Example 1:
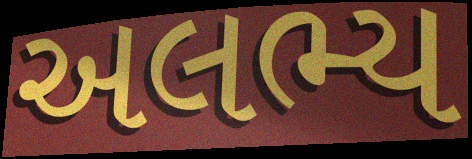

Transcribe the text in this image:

અલભ્ય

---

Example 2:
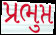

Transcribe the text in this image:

પ્રભુપ્ત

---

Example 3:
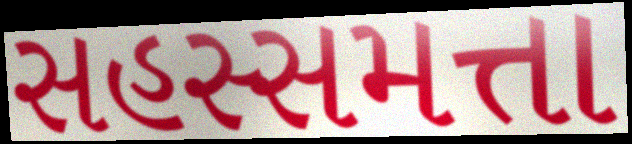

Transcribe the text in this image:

સહસ્સમત્તા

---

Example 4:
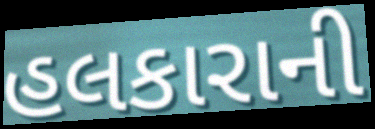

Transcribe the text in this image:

હલકારાની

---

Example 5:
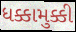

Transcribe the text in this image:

ધક્કામુક્કી